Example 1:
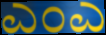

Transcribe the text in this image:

ಎಂಎ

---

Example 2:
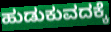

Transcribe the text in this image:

ಹುಡುಕುವದಕ್ಕೆ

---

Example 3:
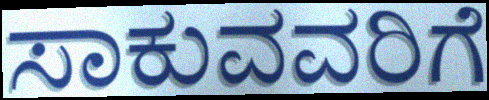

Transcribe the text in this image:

ಸಾಕುವವರಿಗೆ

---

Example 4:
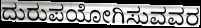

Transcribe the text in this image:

ದುರುಪಯೋಗಿಸುವವರ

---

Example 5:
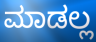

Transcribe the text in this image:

ಮಾಡಲ್ಲ